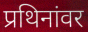
प्रथिनांवर